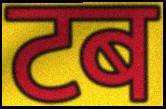
टब